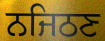
ਨਜਿਠਣ